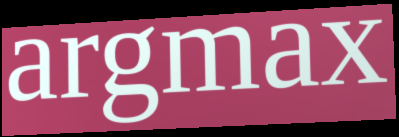
argmax